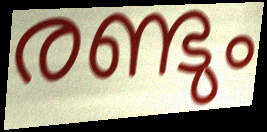
രണ്ടും